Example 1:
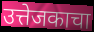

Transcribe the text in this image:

उत्तेजकाचा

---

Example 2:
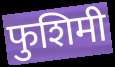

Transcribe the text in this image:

फुशिमी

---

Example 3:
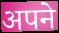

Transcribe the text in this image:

अपने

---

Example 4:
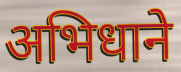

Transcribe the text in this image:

अभिधाने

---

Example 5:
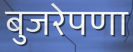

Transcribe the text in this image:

बुजरेपणा